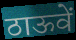
ठाऊवें